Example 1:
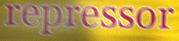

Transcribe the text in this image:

repressor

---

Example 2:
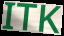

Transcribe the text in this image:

ITK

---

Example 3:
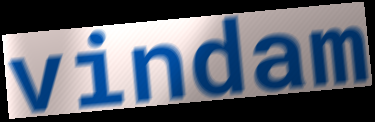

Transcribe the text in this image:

vindam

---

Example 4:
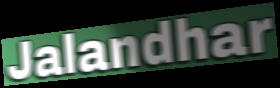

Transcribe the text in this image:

Jalandhar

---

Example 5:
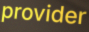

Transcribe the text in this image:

provider